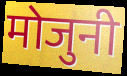
मोजुनी